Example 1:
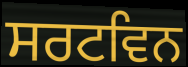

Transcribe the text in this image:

ਸਰਟਵਿਨ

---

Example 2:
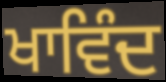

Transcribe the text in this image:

ਖਾਵਿੰਦ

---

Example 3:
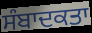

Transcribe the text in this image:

ਸੰਬਾਦਕਤਾ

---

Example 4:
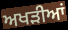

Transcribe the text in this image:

ਅਖੜੀਆਂ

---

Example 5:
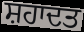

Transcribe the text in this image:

ਸ਼ਹਾਦਤ